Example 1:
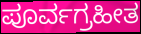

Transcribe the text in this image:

ಪೂರ್ವಗ್ರಹೀತ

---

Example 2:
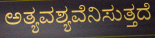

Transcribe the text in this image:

ಅತ್ಯವಶ್ಯವೆನಿಸುತ್ತದೆ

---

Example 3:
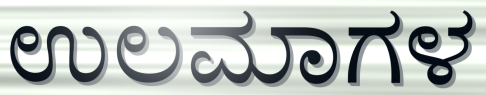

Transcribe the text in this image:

ಉಲಮಾಗಳ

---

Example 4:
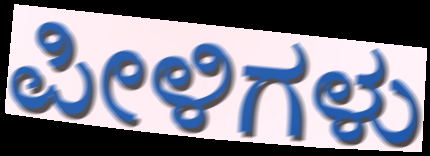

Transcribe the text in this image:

ಪೀಳಿಗಳು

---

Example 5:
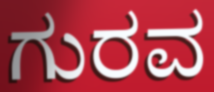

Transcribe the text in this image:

ಗುರವ